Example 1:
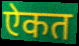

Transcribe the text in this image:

ऐकत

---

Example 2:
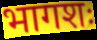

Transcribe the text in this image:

भागशः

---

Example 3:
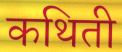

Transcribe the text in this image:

कथिती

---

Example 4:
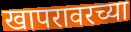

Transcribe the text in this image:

खापरावरच्या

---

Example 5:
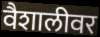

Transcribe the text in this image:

वैशालीवर